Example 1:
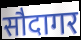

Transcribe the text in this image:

सौदागर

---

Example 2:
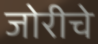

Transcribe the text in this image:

जोरीचे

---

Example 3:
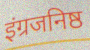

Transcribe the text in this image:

इंग्रजनिष्ठ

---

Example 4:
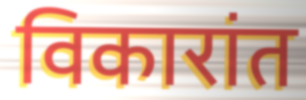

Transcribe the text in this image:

विकारांत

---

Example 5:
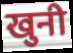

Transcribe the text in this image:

खुनी